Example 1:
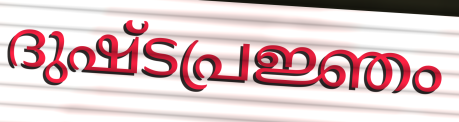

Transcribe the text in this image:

ദുഷ്ടപ്രജ്ഞം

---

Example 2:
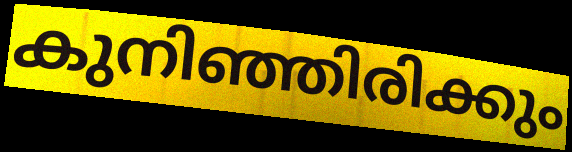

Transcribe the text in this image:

കുനിഞ്ഞിരിക്കും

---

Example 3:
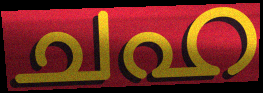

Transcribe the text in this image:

ചഹ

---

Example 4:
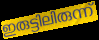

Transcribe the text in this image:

ഇരുട്ടിലിരുന്ന്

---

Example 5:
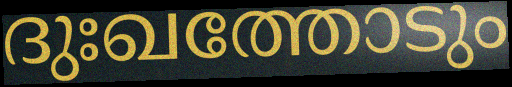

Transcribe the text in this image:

ദുഃഖത്തോടും